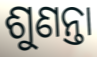
ଶୁଣନ୍ତା